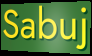
Sabuj